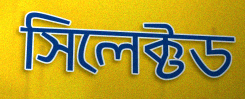
সিলেক্টড